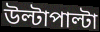
উল্টাপাল্টা